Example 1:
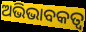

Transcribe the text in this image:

ଅଭିଭାବକତ୍ବ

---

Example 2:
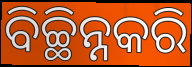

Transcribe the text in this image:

ବିଚ୍ଛିନ୍ନକରି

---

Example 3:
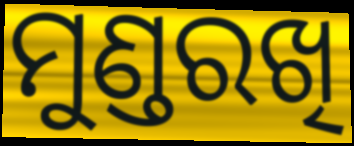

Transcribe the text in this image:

ମୁଣ୍ଡରଖି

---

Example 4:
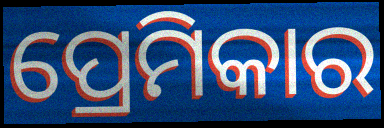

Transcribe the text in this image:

ପ୍ରେମିକାର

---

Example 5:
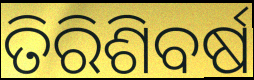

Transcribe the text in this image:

ତିରିଶିବର୍ଷ